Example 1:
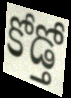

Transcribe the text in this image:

కోడ్తో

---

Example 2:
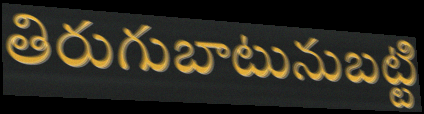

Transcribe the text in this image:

తిరుగుబాటునుబట్టి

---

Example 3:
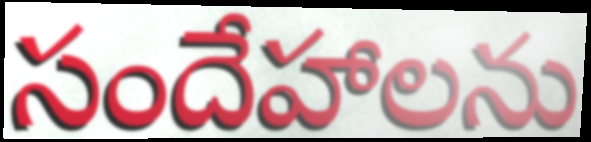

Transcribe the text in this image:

సందేహాలను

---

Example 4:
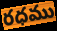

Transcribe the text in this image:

రధము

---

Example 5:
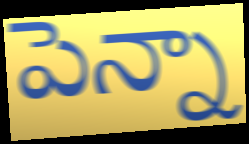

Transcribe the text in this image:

పెన్నా